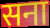
सना